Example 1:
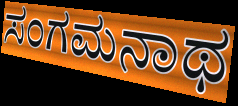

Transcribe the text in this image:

ಸಂಗಮನಾಥ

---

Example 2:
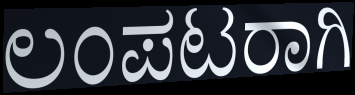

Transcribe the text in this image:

ಲಂಪಟರಾಗಿ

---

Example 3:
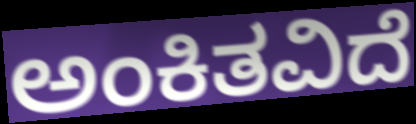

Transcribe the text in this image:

ಅಂಕಿತವಿದೆ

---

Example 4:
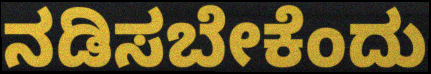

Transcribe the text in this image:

ನಡಿಸಬೇಕೆಂದು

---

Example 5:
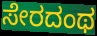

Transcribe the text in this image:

ಸೇರದಂಥ